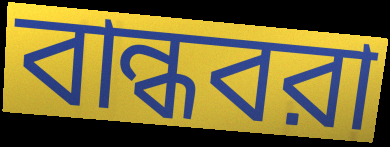
বান্ধবরা